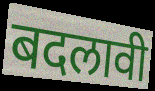
बदलावी